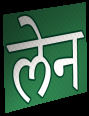
लेन